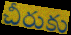
చీరుకు